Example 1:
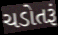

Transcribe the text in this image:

ચડોતરૂં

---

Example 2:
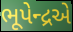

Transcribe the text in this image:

ભૂપેન્દ્રએ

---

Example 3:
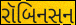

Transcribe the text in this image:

રૉબિનસન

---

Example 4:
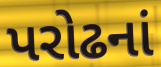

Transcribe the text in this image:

પરોઢનાં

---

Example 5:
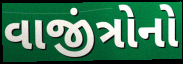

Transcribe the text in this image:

વાજીંત્રોનો